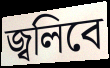
জ্বলিবে